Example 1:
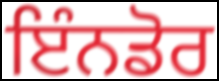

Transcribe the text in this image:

ਇੰਨਡੋਰ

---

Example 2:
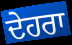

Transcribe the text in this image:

ਦੇਹਰਾ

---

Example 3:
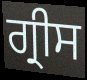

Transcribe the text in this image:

ਗ੍ਰੀਸ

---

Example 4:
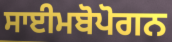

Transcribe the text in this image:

ਸਾਈਮਬੋਪੋਗਨ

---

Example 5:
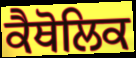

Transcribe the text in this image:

ਕੈਥੋਲਿਕ